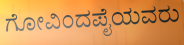
ಗೋವಿಂದಪೈಯವರು